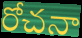
రోచనా